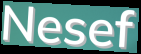
Nesef